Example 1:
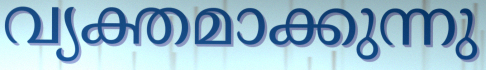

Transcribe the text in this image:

വ്യക്തമാക്കുന്നു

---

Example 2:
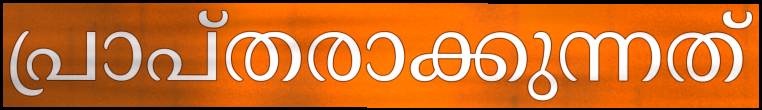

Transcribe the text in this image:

പ്രാപ്തരാക്കുന്നത്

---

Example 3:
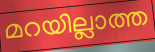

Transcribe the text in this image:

മറയില്ലാത്ത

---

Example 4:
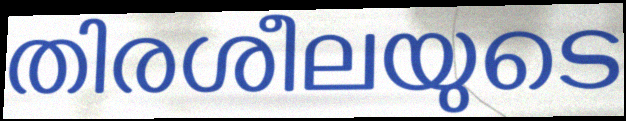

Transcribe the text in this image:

തിരശീലയുടെ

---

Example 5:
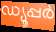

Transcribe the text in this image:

ഡ്യൂപ്പർ